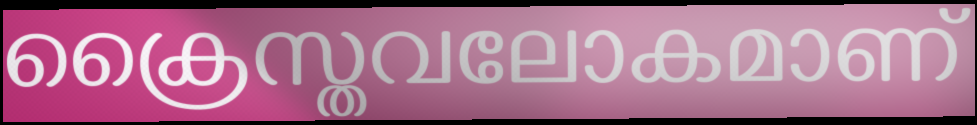
ക്രൈസ്തവലോകമാണ്